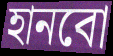
হানবো